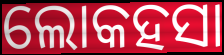
ଲୋକହସା